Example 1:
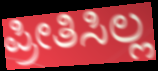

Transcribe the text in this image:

ಪ್ರೀತಿಸಿಲ್ಲ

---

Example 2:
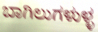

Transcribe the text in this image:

ಬಾಗಿಲುಗಳುಳ್ಳ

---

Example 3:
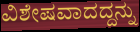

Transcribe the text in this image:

ವಿಶೇಷವಾದದ್ದನ್ನು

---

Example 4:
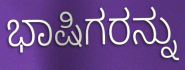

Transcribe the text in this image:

ಭಾಷಿಗರನ್ನು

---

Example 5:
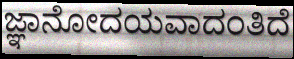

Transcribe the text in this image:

ಜ್ಞಾನೋದಯವಾದಂತಿದೆ